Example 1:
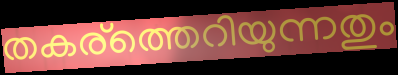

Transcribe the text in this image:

തകര്ത്തെറിയുന്നതും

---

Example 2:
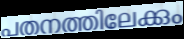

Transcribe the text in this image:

പതനത്തിലേക്കും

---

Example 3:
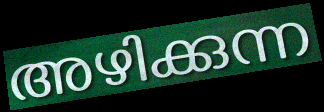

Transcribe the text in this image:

അഴിക്കുന്ന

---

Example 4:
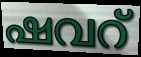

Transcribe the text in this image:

ഷവറ്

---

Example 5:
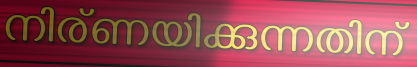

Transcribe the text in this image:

നിര്ണയിക്കുന്നതിന്